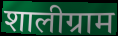
शालीग्राम